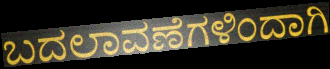
ಬದಲಾವಣೆಗಳಿಂದಾಗಿ